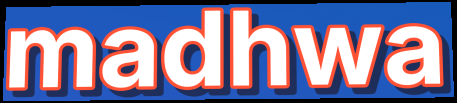
madhwa